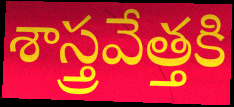
శాస్త్రవేత్తకి